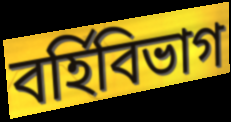
বর্হিবিভাগ